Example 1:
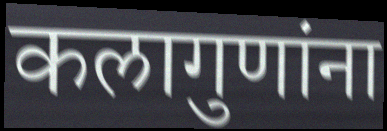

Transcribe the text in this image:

कलागुणांना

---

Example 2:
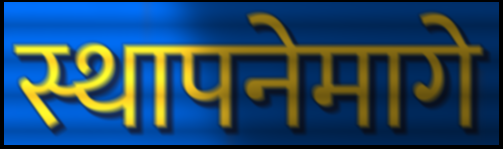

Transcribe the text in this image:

स्थापनेमागे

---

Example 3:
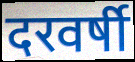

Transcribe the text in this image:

दरवर्षी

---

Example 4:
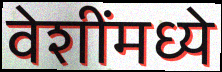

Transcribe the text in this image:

वेशींमध्ये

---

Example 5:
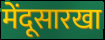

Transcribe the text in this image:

मेंदूसारखा